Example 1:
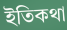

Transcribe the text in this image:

ইতিকথা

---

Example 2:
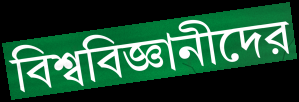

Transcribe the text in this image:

বিশ্ববিজ্ঞানীদের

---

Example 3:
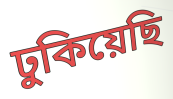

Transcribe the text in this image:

ঢুকিয়েছি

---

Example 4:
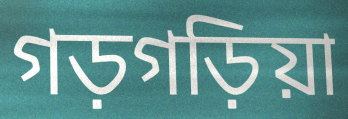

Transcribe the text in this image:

গড়গড়িয়া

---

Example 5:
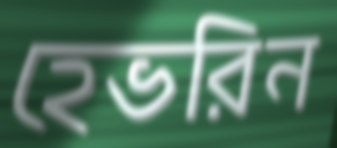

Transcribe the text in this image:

হেভরিন